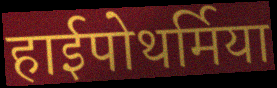
हाईपोथर्मिया